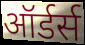
ऑर्डर्स